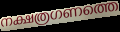
നക്ഷത്രഗണത്തെ